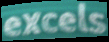
excels